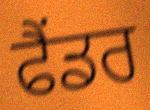
ਫੈਂਡਰ